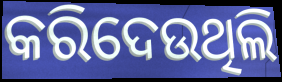
କରିଦେଉଥିଲି